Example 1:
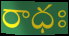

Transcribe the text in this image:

రాధః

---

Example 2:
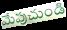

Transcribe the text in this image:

మేపుచుండి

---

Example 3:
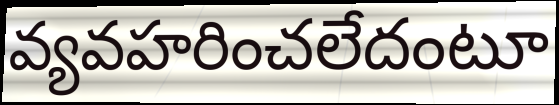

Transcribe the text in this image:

వ్యవహరించలేదంటూ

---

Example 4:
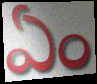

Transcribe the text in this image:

ఏం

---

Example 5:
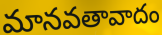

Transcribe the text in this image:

మానవతావాదం